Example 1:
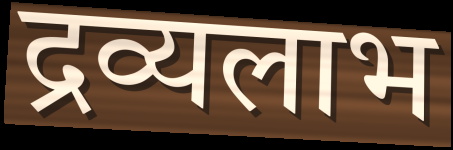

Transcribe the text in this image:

द्रव्यलाभ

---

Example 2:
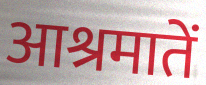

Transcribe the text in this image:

आश्रमातें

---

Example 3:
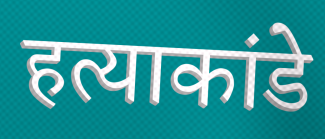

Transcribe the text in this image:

हत्याकांडे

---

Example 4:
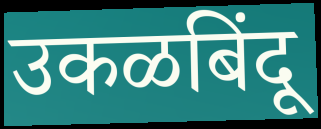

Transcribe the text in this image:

उकळबिंदू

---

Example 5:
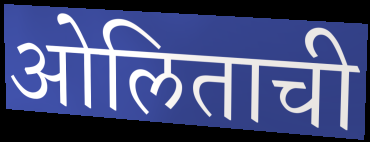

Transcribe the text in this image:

ओलिताची